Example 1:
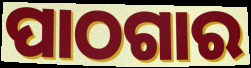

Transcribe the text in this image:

ପାଠଗାର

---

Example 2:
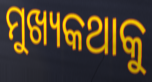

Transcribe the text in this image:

ମୁଖ୍ୟକଥାକୁ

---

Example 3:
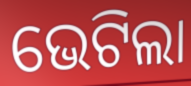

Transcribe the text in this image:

ଭେଟିଲା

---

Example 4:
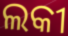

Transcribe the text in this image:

ଲକୀ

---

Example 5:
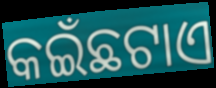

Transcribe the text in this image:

କଇଁଛଟାଏ